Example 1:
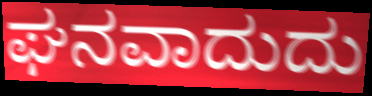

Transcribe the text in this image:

ಘನವಾದುದು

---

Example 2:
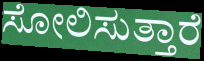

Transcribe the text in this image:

ಸೋಲಿಸುತ್ತಾರೆ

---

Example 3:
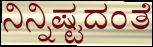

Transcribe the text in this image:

ನಿನ್ನಿಷ್ಟದಂತೆ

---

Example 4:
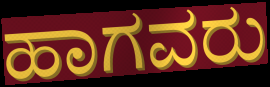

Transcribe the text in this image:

ಹಾಗವರು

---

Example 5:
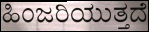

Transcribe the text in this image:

ಹಿಂಜರಿಯುತ್ತದೆ